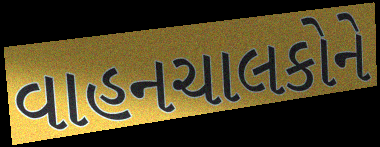
વાહનચાલકોને